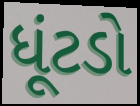
ધૂંટડો